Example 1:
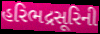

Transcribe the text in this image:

હરિભદ્રસૂરિની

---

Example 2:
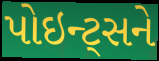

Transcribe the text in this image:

પોઇન્ટ્સને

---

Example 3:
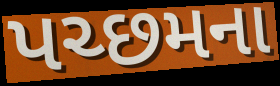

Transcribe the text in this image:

પચ્છમના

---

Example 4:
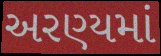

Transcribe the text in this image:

અરણ્યમાં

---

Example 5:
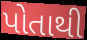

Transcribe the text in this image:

પોતાથી